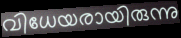
വിധേയരായിരുന്നു